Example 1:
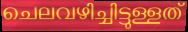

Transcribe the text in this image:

ചെലവഴിച്ചിട്ടുള്ളത്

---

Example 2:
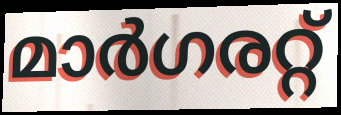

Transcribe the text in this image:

മാർഗരറ്റ്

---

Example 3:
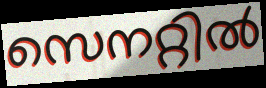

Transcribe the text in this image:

സെനറ്റിൽ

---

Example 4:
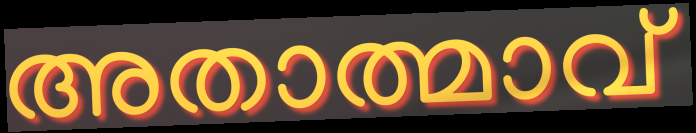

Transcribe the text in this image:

അതാത്മാവ്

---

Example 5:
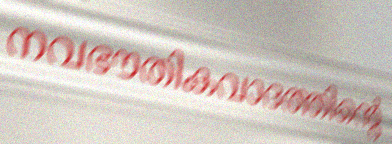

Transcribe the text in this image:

നവഭൗതികവാദത്തിന്റെ